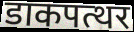
डाकपत्थर